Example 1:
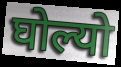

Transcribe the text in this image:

घोल्यो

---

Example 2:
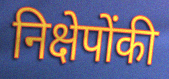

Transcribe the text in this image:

निक्षेपोंकी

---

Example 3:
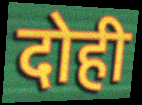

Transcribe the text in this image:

दोही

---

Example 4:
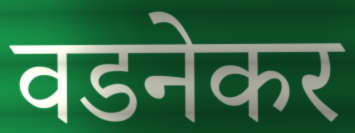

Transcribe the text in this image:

वडनेकर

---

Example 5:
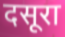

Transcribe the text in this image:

दसूरा